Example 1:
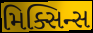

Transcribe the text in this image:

મિક્સિન્સ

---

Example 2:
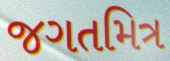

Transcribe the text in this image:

જગતમિત્ર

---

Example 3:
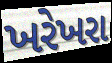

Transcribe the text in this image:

ખરેખરા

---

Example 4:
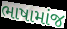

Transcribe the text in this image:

ભાષામાંજ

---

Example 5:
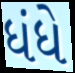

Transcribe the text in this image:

ધંધે